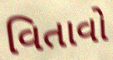
વિતાવો